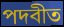
পদবীত